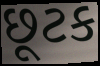
છૂટક